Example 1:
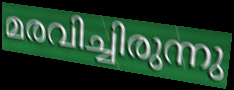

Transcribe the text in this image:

മരവിച്ചിരുന്നു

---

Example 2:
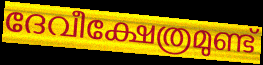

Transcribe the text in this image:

ദേവീക്ഷേത്രമുണ്ട്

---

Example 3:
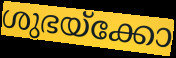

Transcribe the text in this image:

ശുഭയ്ക്കോ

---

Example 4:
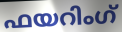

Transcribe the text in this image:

ഫയറിംഗ്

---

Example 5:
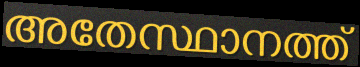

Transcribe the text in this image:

അതേസ്ഥാനത്ത്